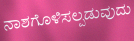
ನಾಶಗೊಳಿಸಲ್ಪಡುವುದು